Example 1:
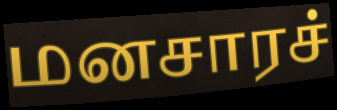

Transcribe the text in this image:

மனசாரச்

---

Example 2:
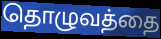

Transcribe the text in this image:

தொழுவத்தை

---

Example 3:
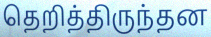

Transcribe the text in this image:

தெறித்திருந்தன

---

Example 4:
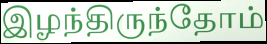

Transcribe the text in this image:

இழந்திருந்தோம்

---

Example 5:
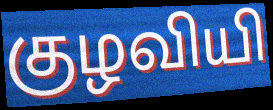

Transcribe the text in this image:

குழவியி